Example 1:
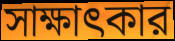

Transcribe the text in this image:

সাক্ষাৎকার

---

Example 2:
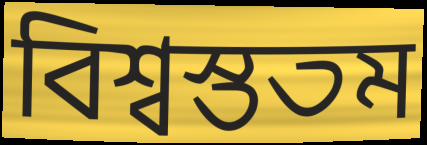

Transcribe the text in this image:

বিশ্বস্ততম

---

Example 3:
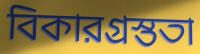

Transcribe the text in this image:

বিকারগ্রস্ততা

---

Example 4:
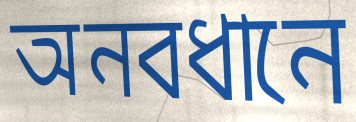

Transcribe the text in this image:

অনবধানে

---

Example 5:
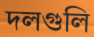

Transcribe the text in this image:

দলগুলি